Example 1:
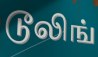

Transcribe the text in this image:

டூலிங்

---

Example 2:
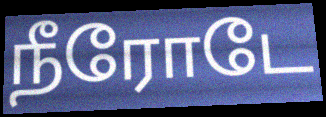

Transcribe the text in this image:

நீரோடே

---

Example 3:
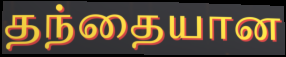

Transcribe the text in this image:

தந்தையான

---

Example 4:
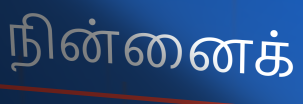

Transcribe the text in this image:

நின்னைக்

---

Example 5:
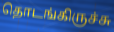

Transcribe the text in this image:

தொடங்கிருச்சு